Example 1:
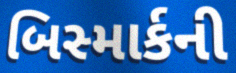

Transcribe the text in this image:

બિસ્માર્કની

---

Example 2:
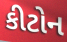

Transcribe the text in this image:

કીટોન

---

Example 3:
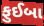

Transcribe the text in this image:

ફુઈબા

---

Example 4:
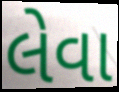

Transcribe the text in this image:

લેવા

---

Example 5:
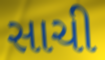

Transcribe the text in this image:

સાચી